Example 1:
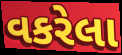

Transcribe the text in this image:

વકરેલા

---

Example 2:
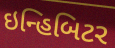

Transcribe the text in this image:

ઇન્હિબિટર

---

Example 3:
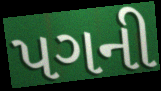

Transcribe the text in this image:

પગની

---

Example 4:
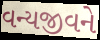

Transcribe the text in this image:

વન્યજીવને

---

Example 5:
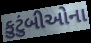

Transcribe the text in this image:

કુટુંબીઓના